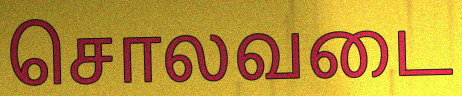
சொலவடை